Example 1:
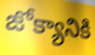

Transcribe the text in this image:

జోక్యానికి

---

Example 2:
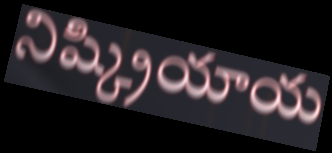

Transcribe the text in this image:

నిష్క్రియాయ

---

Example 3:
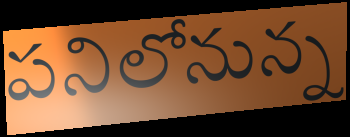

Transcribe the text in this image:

పనిలోనున్న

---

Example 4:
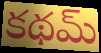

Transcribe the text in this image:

కథమ్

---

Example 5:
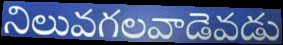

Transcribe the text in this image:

నిలువగలవాడెవడు